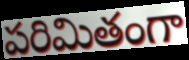
పరిమితంగా